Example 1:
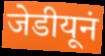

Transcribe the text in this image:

जेडीयूनं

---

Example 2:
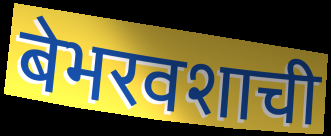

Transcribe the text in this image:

बेभरवशाची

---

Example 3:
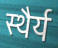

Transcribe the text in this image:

स्थैर्य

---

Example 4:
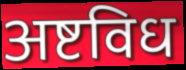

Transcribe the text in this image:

अष्टविध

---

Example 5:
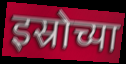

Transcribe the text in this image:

इस्रोच्या